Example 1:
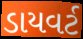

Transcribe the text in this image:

ડાયવર્ટ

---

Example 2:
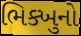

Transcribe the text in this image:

ભિક્ખુનો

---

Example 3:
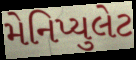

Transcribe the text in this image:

મેનિપ્યુલેટ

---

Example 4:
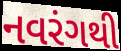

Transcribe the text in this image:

નવરંગથી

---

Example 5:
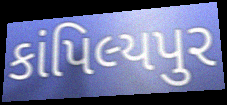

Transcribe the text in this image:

કાંપિલ્યપુર